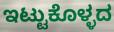
ಇಟ್ಟುಕೊಳ್ಳದ